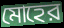
মোহের